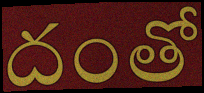
దంతో